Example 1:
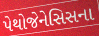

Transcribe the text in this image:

પેથોજેનેસિસના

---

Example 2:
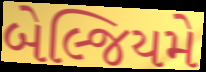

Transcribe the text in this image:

બેલ્જિયમે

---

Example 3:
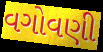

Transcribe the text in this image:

વગોવણી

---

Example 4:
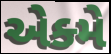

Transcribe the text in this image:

એક્મે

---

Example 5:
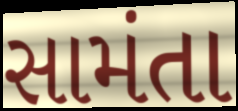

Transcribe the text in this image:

સામંતા